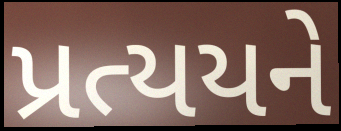
પ્રત્યયને